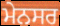
ਮੇਨਸਰ